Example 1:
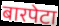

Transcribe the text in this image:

बारपेटा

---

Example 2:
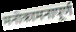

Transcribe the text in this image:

मनोकामनापूर्ण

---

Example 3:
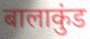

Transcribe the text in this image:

बालाकुंड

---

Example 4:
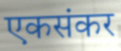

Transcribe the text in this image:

एकसंकर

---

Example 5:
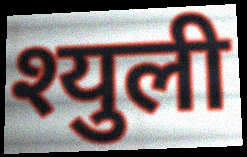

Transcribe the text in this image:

श्युली